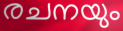
രചനയും